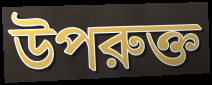
উপরুক্ত